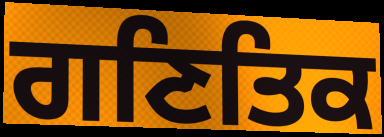
ਗਣਿਤਿਕ